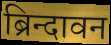
ब्रिन्दावन